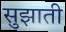
सुझाती